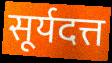
सूर्यदत्त